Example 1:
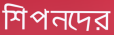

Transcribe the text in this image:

শিপনদের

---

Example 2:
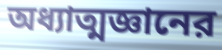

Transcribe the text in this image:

অধ্যাত্মজ্ঞানের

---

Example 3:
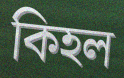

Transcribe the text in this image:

কিহল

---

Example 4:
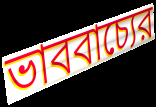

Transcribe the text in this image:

ভাববাচ্যের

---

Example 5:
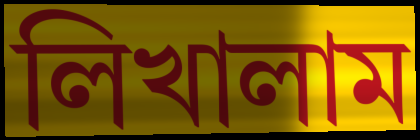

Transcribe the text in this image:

লিখালাম